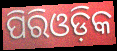
ପିରିଓଡ଼ିକ